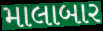
માલાબાર